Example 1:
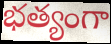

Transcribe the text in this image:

భత్యంగా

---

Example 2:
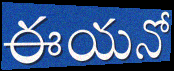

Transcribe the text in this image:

ఈయనో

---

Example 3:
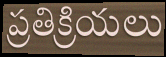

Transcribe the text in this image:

ప్రతిక్రియలు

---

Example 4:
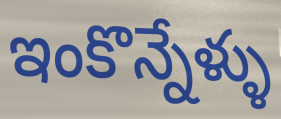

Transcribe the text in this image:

ఇంకొన్నేళ్ళు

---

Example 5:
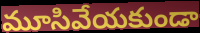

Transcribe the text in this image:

మూసివేయకుండా